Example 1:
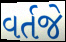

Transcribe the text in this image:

વર્તજે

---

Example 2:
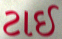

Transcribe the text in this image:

ટાઈ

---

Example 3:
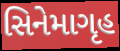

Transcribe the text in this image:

સિનેમાગૃહ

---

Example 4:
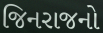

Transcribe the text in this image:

જિનરાજનો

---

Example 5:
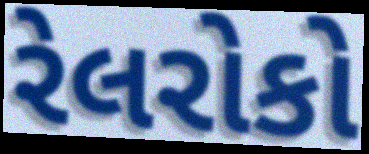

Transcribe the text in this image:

રેલરોકો